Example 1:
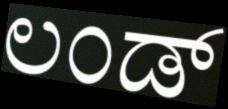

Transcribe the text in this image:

ಲಂಡ್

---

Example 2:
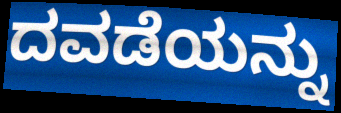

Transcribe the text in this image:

ದವಡೆಯನ್ನು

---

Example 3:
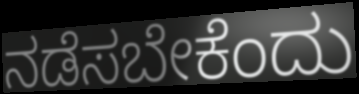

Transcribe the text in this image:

ನಡೆಸಬೇಕೆಂದು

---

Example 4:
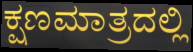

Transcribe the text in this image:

ಕ್ಷಣಮಾತ್ರದಲ್ಲಿ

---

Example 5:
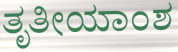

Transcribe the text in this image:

ತೃತೀಯಾಂಶ